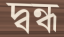
দ্বন্ধ